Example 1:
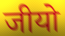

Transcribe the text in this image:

जीयो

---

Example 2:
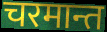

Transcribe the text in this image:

चरमान्त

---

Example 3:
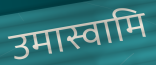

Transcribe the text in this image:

उमास्वामि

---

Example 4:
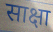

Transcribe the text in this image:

साक्षा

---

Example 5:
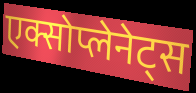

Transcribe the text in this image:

एक्सोप्लेनेट्स